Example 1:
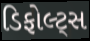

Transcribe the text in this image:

ડિફોલ્ટ્સ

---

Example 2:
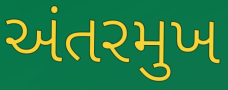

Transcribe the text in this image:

અંતરમુખ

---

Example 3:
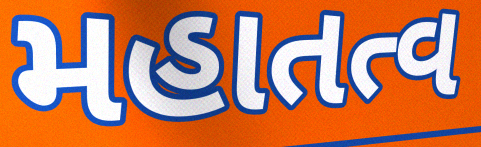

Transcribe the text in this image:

મહાતત્વ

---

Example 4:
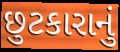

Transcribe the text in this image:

છુટકારાનું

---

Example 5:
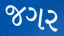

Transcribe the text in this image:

જગર